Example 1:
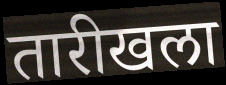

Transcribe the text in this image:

तारीखला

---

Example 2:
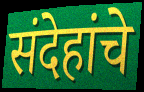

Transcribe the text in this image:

संदेहांचे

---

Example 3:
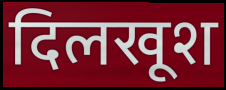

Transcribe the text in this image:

दिलखूश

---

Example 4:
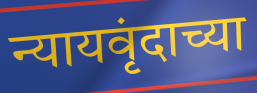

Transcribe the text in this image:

न्यायवृंदाच्या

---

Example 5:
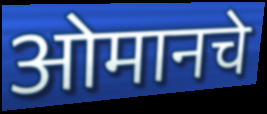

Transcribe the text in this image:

ओमानचे